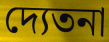
দ্যেতনা